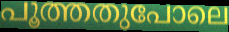
പൂത്തതുപോലെ